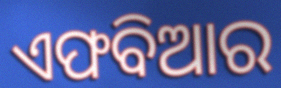
ଏଫବିଆର